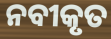
ନବୀକୃତ